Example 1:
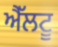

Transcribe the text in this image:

ਐੱਲਟੂ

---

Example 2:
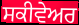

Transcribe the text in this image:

ਸਕੀਵੇਅਰ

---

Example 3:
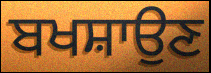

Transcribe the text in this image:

ਬਖਸ਼ਾਉਣ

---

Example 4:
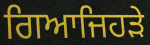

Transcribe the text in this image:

ਗਿਆਜਿਹੜੇ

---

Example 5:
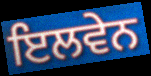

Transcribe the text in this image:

ਇਲਵੇਨ